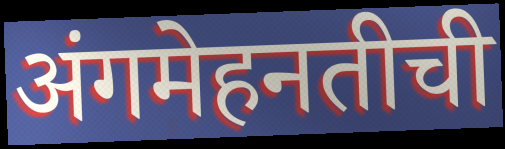
अंगमेहनतीची